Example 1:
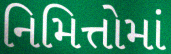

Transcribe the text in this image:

નિમિત્તોમાં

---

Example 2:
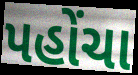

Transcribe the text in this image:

પહોંચા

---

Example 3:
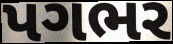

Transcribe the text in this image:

પગભર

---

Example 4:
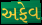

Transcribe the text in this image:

અફેવ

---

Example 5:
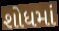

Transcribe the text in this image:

શોધમાં